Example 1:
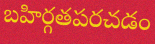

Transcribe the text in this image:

బహిర్గతపరచడం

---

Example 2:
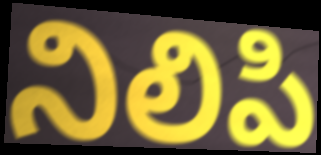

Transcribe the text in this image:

నిలిపి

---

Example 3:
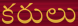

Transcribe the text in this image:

కరులు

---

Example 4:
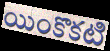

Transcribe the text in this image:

యింకొకటి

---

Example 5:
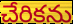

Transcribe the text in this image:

చేరికను